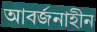
আবর্জনাহীন